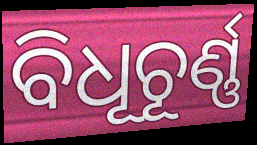
ବିଧୂଚୂର୍ଣ୍ଣ